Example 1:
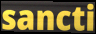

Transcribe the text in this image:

sancti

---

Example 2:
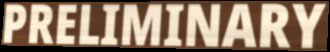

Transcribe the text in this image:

PRELIMINARY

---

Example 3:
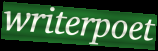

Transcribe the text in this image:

writerpoet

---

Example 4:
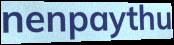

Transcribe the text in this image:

nenpaythu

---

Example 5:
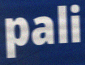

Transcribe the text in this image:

pali